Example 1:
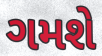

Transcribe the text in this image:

ગમશે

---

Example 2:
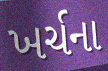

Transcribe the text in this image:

ખર્ચના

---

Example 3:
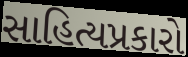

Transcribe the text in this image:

સાહિત્યપ્રકારો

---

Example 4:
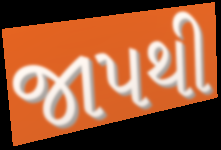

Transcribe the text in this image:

જાપથી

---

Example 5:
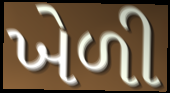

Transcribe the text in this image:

ખેળી